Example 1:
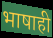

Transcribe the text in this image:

भाषाही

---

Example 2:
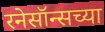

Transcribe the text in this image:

रनेसॉन्सच्या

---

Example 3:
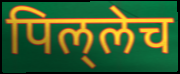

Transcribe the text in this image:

पिल्लेच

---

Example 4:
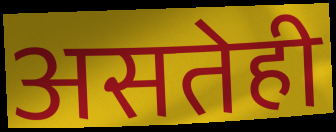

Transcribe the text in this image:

असतेही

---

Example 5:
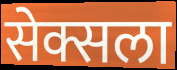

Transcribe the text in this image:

सेक्सला